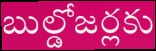
బుల్డోజర్లకు